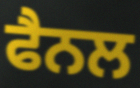
ਫੈਨਲ